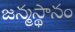
జన్మస్థానం